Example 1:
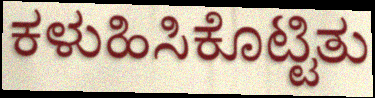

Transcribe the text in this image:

ಕಳುಹಿಸಿಕೊಟ್ಟಿತು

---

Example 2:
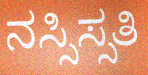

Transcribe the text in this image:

ನಸ್ಸಿಸ್ಸತಿ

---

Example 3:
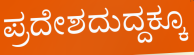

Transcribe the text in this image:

ಪ್ರದೇಶದುದ್ದಕ್ಕೂ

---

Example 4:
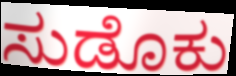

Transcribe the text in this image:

ಸುಡೊಕು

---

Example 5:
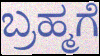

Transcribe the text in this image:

ಬ್ರಹ್ಮಗೆ